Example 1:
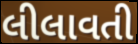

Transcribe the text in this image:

લીલાવતી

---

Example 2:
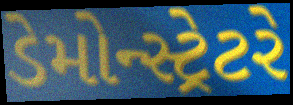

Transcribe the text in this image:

ડેમોન્સ્ટ્રેટરે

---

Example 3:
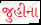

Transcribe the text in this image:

જુહીના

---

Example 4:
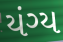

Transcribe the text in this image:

યંગ્ય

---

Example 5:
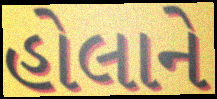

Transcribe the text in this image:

હોલાને